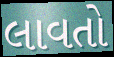
લાવતો